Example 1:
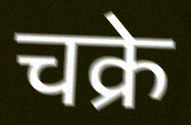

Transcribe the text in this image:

चक्रे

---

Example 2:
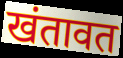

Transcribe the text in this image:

खंतावत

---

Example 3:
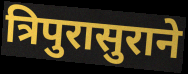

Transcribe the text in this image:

त्रिपुरासुराने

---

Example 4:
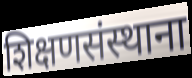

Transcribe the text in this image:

शिक्षणसंस्थाना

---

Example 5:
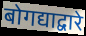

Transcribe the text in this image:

बोगद्याद्वारे